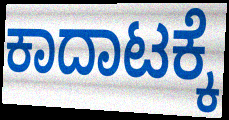
ಕಾದಾಟಕ್ಕೆ